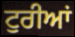
ਟੁਰੀਆਂ